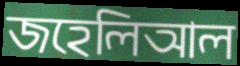
জহেলিআল